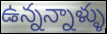
ఉన్నన్నాళ్ళు